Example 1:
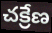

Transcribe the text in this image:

చక్రేణ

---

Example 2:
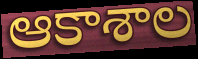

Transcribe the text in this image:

ఆకాశాల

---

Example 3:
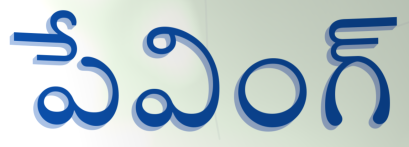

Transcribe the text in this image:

పేవింగ్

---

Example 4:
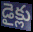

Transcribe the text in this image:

డైక్లు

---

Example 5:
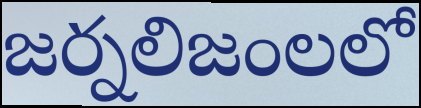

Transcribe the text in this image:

జర్నలిజంలలో